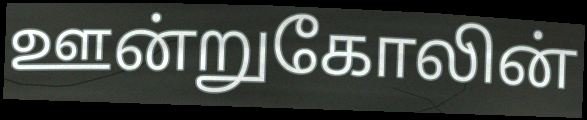
ஊன்றுகோலின்